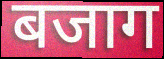
बजाग